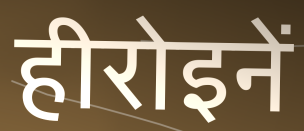
हीरोइनें